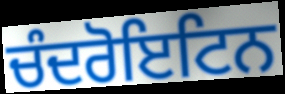
ਚੰਦਰੋਇਟਿਨ